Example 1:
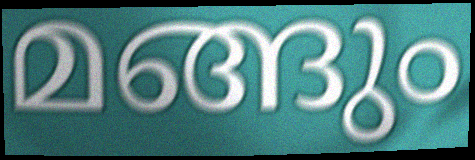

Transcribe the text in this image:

മങ്ങും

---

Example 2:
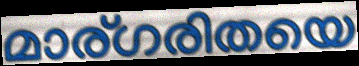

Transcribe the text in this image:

മാര്ഗരിതയെ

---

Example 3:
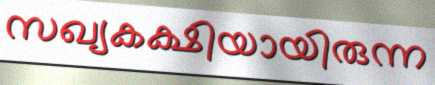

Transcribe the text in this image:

സഖ്യകക്ഷിയായിരുന്ന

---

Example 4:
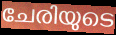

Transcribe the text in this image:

ചേരിയുടെ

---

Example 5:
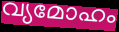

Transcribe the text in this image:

വ്യമോഹം